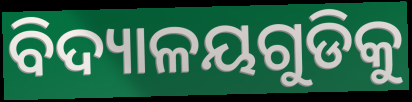
ବିଦ୍ୟାଳୟଗୁଡିକୁ